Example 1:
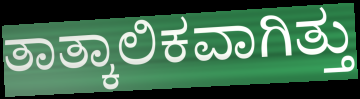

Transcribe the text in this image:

ತಾತ್ಕಾಲಿಕವಾಗಿತ್ತು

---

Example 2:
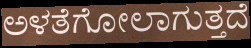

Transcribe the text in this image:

ಅಳತೆಗೋಲಾಗುತ್ತದೆ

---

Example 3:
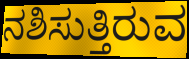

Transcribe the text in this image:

ನಶಿಸುತ್ತಿರುವ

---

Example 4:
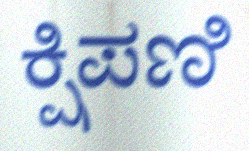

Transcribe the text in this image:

ಕ್ಷಿಪಣಿ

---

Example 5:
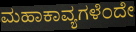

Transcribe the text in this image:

ಮಹಾಕಾವ್ಯಗಳೆಂದೇ